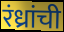
रंध्रांची